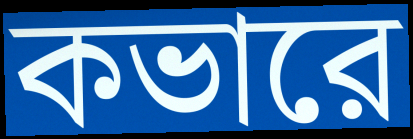
কভারে